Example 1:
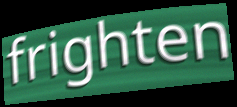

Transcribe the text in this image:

frighten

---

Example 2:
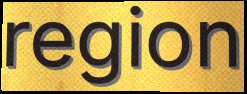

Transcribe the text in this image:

region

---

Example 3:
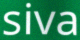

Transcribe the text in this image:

siva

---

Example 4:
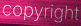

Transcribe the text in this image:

copyright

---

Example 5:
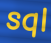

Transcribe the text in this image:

sql